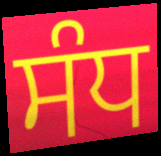
ਸੰਧ